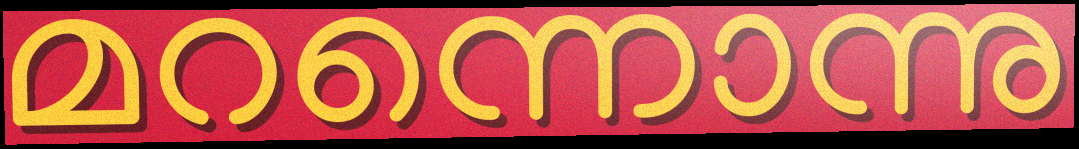
മറന്നൊന്നു